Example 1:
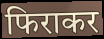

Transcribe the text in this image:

फिराकर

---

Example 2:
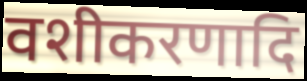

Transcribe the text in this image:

वशीकरणादि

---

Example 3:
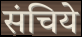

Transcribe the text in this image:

संचिये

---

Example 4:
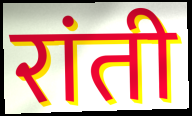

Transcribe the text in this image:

रांती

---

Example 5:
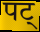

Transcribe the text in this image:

पट्